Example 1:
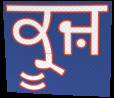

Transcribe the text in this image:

ਕ੍ਰੂਜ਼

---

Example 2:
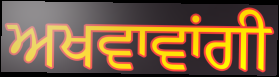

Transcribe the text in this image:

ਅਖਵਾਵਾਂਗੀ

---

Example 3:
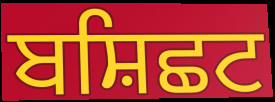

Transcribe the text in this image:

ਬਸ਼ਿਛਟ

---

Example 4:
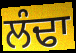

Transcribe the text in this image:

ਲੰਢਾ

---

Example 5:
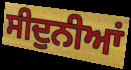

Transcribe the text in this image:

ਸੀਦੁਨੀਆਂ